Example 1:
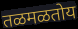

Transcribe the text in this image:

तळमळतोय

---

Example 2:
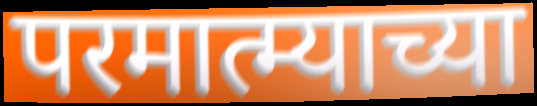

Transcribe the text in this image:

परमात्म्याच्या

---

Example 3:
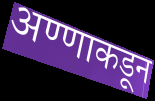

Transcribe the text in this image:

अण्णाकडून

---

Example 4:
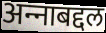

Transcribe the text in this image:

अन्‍नाबद्दल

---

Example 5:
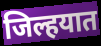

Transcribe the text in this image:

जिल्हयात